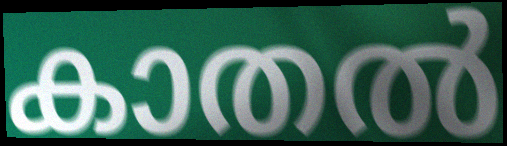
കാതൽ